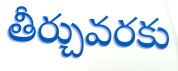
తీర్చువరకు